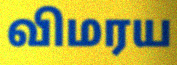
விமரய